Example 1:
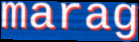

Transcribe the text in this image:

marag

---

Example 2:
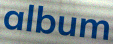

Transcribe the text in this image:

album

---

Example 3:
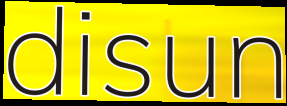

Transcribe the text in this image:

disun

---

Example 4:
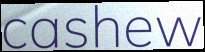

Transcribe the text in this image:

cashew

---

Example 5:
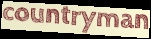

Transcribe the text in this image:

countryman